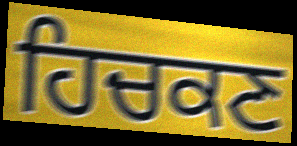
ਹਿਚਕਣ